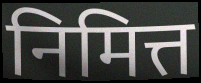
निमित्त